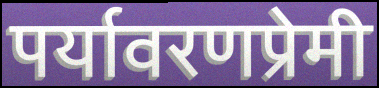
पर्यावरणप्रेमी